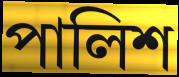
পালিশ